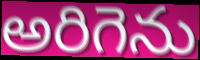
అరిగెను